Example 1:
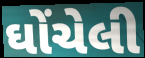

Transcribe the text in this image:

ઘોંચેલી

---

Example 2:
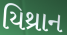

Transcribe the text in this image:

યિથ્રાન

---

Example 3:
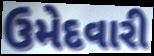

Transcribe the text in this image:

ઉમેદવારી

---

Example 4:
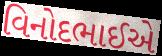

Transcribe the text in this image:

વિનોદભાઈએ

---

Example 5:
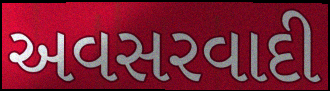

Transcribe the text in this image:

અવસરવાદી